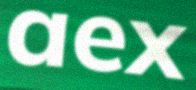
aex